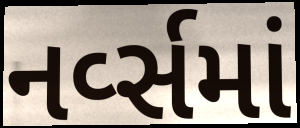
નર્વ્સમાં